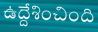
ఉద్దేశించింది